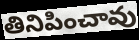
తినిపించావు